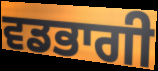
ਵਡਭਾਗੀ